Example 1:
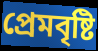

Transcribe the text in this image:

প্রেমবৃষ্টি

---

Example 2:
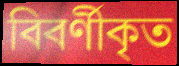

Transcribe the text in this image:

বিবর্ণীকৃত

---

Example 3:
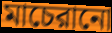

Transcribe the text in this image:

মাচেরানো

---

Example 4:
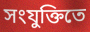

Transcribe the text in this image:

সংযুক্তিতে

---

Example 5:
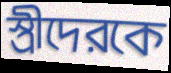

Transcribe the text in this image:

স্ত্রীদেরকে